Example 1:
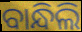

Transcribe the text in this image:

ବାନ୍ଧିଲି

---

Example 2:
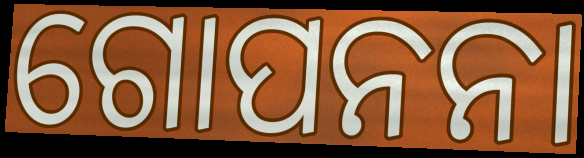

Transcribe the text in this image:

ଗୋପନନା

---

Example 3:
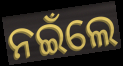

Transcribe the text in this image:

ନଇଁଲେ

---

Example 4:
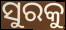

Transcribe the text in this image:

ସୁରକୁ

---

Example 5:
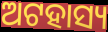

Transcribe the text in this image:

ଅଟହାସ୍ୟ